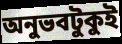
অনুভবটুকুই